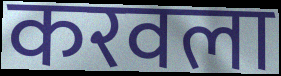
करवला